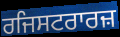
ਰਜਿਸਟਰਾਰਜ਼